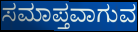
ಸಮಾಪ್ತವಾಗುವ